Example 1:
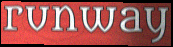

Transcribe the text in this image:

runway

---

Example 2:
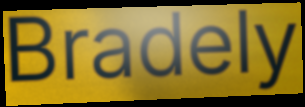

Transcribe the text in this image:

Bradely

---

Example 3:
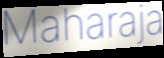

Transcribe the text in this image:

Maharaja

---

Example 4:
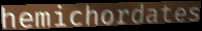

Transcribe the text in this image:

hemichordates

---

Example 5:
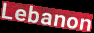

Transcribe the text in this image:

Lebanon